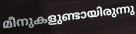
മീനുകളുണ്ടായിരുന്നു